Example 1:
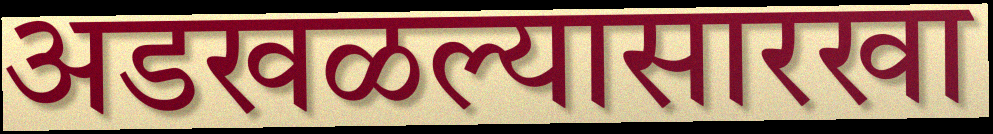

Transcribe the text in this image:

अडखळल्यासारखा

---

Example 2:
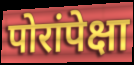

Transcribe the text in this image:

पोरांपेक्षा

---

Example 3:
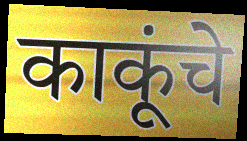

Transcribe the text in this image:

काकूंचे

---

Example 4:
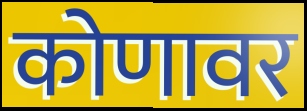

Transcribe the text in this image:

कोणावर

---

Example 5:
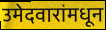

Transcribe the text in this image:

उमेदवारांमधून